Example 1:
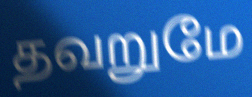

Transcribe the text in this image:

தவறுமே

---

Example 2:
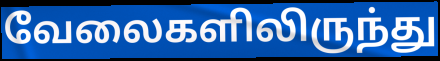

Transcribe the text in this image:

வேலைகளிலிருந்து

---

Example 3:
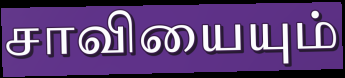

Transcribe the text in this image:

சாவியையும்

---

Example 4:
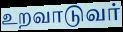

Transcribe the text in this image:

உறவாடுவர்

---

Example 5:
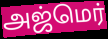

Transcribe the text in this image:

அஜ்மெர்